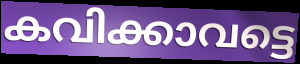
കവിക്കാവട്ടെ